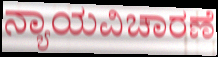
ನ್ಯಾಯವಿಚಾರಣೆ